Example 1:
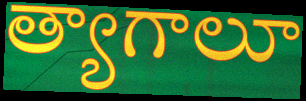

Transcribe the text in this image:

త్యాగాలూ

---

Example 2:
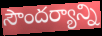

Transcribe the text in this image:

సౌందర్యాన్ని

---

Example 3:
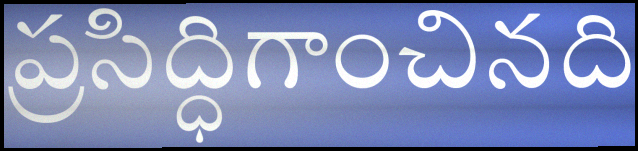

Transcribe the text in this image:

ప్రసిద్ధిగాంచినది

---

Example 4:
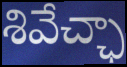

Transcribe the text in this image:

శివేచ్ఛా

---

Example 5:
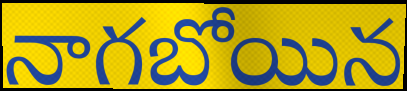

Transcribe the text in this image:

నాగబోయిన